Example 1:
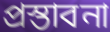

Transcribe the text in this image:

প্রস্তাবনা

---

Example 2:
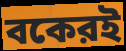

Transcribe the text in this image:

বকেরই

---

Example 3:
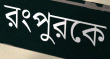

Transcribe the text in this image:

রংপুরকে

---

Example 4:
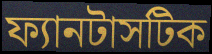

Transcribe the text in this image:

ফ্যানটাসটিক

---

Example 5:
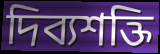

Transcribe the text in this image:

দিব্যশক্তি